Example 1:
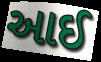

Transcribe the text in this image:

આઈ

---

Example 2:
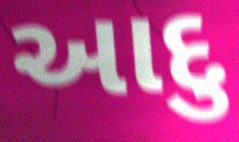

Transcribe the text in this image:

આદુ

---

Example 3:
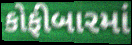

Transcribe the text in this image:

કોફીબારમાં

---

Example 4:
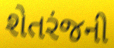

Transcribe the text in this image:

શેતરંજની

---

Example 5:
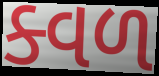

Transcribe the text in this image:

ક્વળ